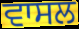
ਵਾਸਲ